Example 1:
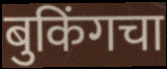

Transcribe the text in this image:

बुकिंगचा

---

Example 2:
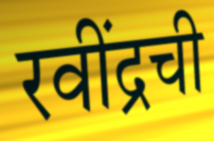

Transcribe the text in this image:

रवींद्रची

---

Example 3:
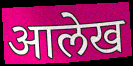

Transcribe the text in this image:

आलेख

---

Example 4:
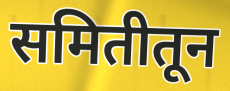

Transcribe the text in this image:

समितीतून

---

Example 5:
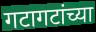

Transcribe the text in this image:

गटागटांच्या